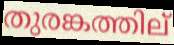
തുരങ്കത്തില്